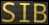
SIB